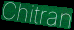
Chitran